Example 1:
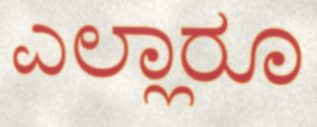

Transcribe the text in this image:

ಎಲ್ಲಾರೂ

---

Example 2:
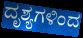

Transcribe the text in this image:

ದೃಶ್ಯಗಳಿಂದ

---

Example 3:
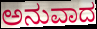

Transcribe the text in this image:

ಅನುವಾದ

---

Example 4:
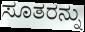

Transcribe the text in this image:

ಸೂತರನ್ನು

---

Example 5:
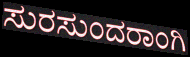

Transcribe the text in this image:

ಸುರಸುಂದರಾಂಗಿ